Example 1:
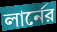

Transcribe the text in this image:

লার্নের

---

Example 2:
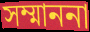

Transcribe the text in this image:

সম্মাননা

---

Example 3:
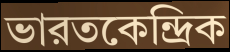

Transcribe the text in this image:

ভারতকেন্দ্রিক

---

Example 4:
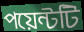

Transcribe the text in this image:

পয়েন্টটি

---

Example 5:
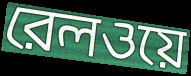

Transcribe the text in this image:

রেলওয়ে